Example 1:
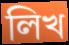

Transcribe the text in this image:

লিখ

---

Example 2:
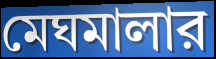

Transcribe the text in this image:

মেঘমালার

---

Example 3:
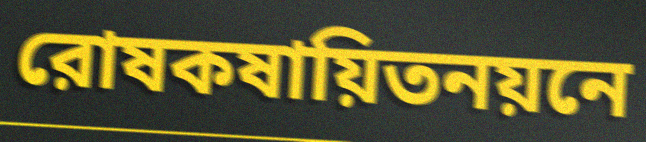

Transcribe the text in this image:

রোষকষায়িতনয়নে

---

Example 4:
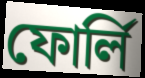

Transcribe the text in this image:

ফোর্লি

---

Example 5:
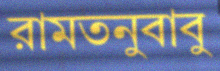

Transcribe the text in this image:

রামতনুবাবু